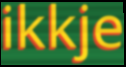
ikkje